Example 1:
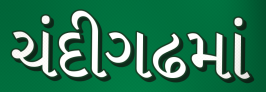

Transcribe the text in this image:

ચંદીગઢમાં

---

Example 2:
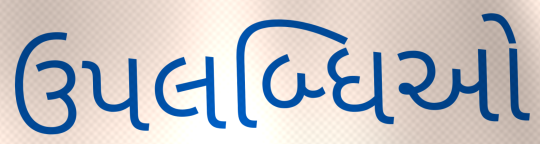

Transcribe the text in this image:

ઉપલબ્ધિઓ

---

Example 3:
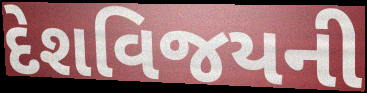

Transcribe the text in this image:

દેશવિજયની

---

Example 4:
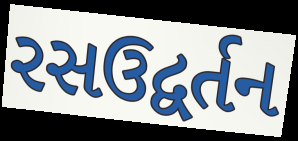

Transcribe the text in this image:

રસઉદ્વર્તન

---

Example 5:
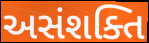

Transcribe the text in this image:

અસંશક્તિ